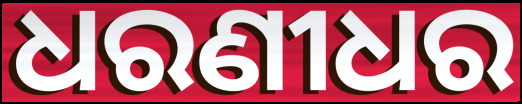
ଧରଣୀଧର